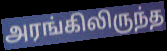
அரங்கிலிருந்த